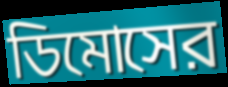
ডিমোসের